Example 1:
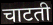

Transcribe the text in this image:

चाटती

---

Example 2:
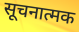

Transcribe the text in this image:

सूचनात्मक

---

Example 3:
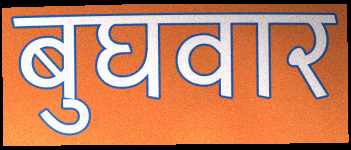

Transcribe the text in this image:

बुघवार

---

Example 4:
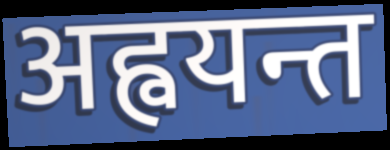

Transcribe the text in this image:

अह्वयन्त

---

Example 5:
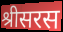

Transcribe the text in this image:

श्रीसरस